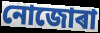
নোজোৰা